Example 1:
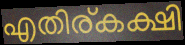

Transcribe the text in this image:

എതിര്കക്ഷി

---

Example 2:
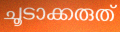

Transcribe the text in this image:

ചൂടാക്കരുത്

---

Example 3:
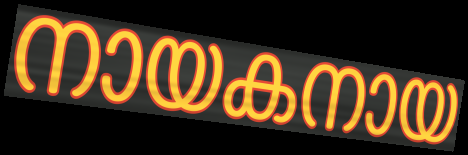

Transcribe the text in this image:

നായകനായ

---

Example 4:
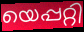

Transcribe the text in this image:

യെപ്പറ്റി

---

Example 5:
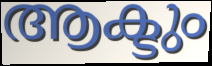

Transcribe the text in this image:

ആക്ടും